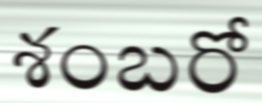
శంబరో